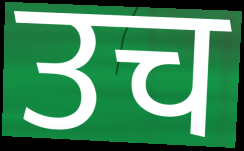
उच